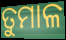
ତୁମାଳ